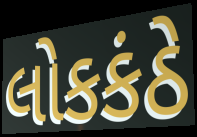
લોકકંઠે